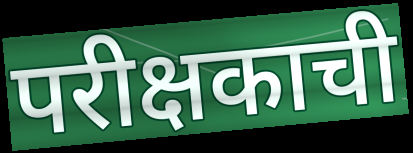
परीक्षकाची